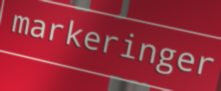
markeringer